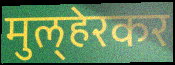
मुल्हेरकर